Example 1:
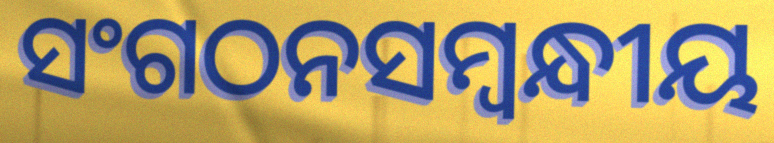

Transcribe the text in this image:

ସଂଗଠନସମ୍ବନ୍ଧୀୟ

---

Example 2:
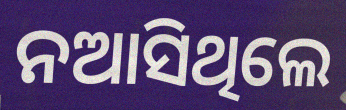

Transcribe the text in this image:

ନଆସିଥିଲେ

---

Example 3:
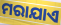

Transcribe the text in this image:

ମରାଯାଏ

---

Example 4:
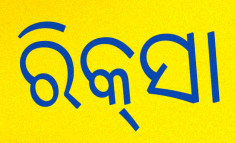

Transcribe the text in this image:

ରିକ୍‌ସା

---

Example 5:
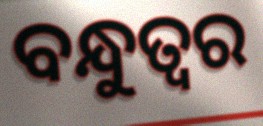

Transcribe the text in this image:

ବନ୍ଧୁତ୍ବର